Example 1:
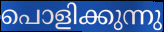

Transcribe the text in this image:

പൊളിക്കുന്നു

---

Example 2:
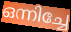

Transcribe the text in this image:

ഒന്നിച്ചേ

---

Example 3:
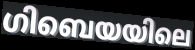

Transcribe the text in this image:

ഗിബെയയിലെ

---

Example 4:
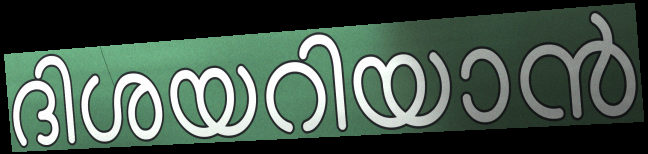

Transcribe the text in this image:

ദിശയറിയാൻ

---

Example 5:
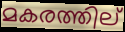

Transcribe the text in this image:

മകരത്തില്